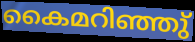
കൈമറിഞ്ഞു്